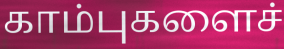
காம்புகளைச்